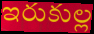
ఇరుకుల్ల